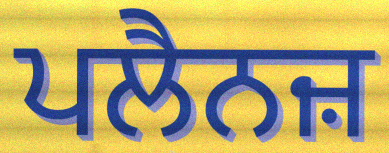
ਪਲੈਨਜ਼